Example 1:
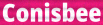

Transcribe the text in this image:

Conisbee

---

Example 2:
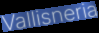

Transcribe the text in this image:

Vallisneria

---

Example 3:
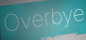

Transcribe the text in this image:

Overbye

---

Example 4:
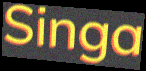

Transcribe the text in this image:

Singa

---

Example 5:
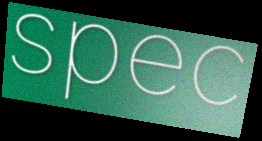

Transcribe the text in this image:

spec